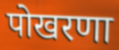
पोखरणा